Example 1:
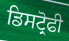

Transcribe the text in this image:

ਡਿਸਟ੍ਰੋਫੀ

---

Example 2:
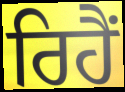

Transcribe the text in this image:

ਰਿਹੈਂ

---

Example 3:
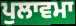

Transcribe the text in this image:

ਪੁਲਾਵਮਾ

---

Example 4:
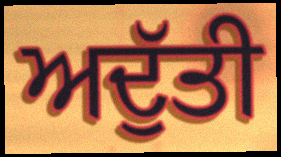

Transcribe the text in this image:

ਅਦੁੱਤੀ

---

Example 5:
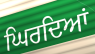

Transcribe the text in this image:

ਘਿਰਦਿਆਂ